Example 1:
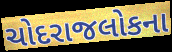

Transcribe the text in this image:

ચોદરાજલોકના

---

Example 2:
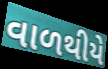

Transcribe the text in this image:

વાળથીયે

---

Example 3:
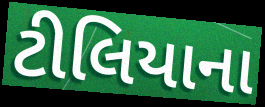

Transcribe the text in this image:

ટીલિયાના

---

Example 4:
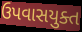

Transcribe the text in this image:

ઉપવાસયુક્ત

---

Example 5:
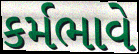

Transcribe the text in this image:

કર્મભાવે